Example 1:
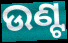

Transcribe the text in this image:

ଉଣ୍ଟ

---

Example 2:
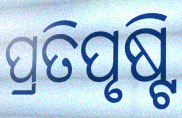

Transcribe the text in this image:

ପ୍ରତିପୃଷ୍ଟି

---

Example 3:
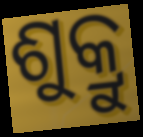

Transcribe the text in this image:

ଶୁକ୍ରୁ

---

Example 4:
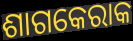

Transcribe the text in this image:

ଶାଗକେରାକ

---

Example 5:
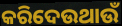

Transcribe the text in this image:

କରିଦେଉଥାଉଁ